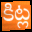
కిట్ల